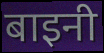
बाइनी